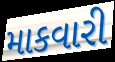
માકવારી